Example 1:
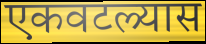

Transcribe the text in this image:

एकवटल्यास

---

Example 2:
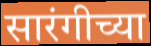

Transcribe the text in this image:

सारंगीच्या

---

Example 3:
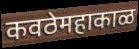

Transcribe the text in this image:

कवठेमहाकाळ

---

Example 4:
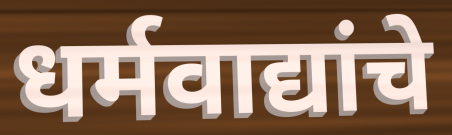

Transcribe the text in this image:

धर्मवाद्यांचे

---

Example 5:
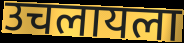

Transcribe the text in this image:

उचलायला